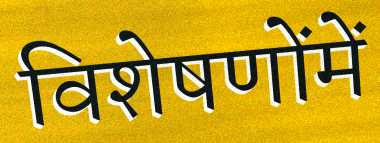
विशेषणोंमें